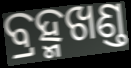
ବ୍ରହ୍ମଖଣ୍ଡ